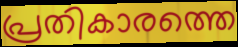
പ്രതികാരത്തെ